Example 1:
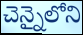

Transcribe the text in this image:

చెన్నైలోని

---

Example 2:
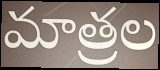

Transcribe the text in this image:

మాత్రల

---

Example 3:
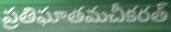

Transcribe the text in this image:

ప్రతిఘాతమచీకరత్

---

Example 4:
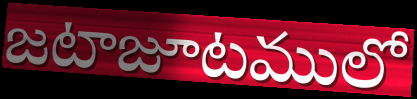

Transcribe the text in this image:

జటాజూటములో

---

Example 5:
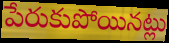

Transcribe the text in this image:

పేరుకుపోయినట్లు